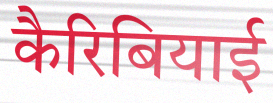
कैरिबियाई